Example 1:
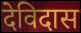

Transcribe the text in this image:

देविदास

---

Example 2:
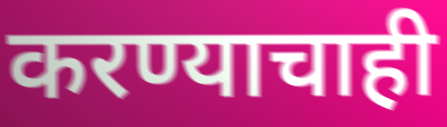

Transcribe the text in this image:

करण्याचाही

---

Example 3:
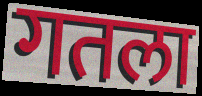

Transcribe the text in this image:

गतला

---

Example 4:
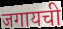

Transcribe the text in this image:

जगायची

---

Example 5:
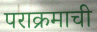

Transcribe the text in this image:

पराक्रमाची